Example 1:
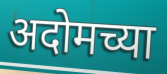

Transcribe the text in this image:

अदोमच्या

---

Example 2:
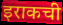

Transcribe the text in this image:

इराकची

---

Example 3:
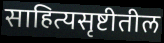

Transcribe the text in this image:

साहित्यसृष्टीतील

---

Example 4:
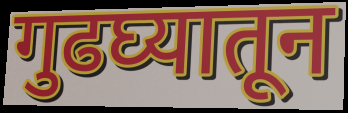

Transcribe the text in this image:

गुढघ्यातून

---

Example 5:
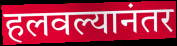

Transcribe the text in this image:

हलवल्यानंतर